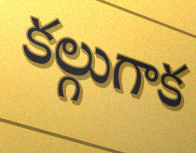
కల్గుగాక